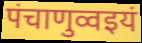
पंचाणुव्वइयं